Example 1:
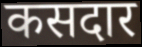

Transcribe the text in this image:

कसदार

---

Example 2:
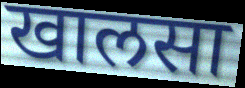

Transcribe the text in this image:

खालसा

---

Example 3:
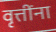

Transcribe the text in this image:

वृत्तींना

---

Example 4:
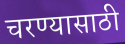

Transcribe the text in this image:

चरण्यासाठी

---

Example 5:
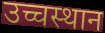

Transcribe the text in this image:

उच्चस्थान